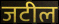
जटील